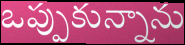
ఒప్పుకున్నాను